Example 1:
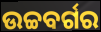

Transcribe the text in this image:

ଉଚ୍ଚବର୍ଗର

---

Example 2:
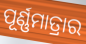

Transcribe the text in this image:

ପୂର୍ଣ୍ଣମାତ୍ରାର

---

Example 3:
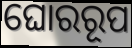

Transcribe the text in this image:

ଘୋରରୂପ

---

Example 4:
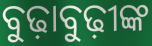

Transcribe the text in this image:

ବୁଢ଼ାବୁଢ଼ୀଙ୍କ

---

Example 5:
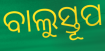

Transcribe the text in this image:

ବାଲୁସ୍ତୂପ